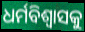
ଧର୍ମବିଶ୍ଵାସକୁ